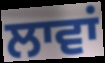
ਲਾਵਾਂ